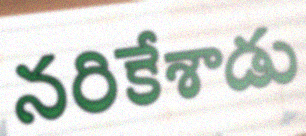
నరికేశాడు